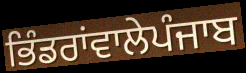
ਭਿੰਡਰਾਂਵਾਲੇਪੰਜਾਬ